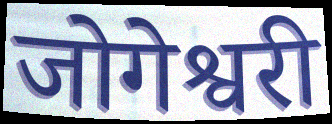
जोगेश्वरी